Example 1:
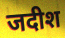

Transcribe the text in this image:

जदीश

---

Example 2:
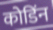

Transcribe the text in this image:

कोडिंन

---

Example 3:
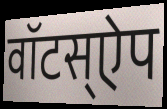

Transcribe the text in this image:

वॉटस्ऐप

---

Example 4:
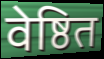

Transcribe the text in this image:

वेष्ठित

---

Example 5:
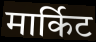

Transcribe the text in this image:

मार्किट